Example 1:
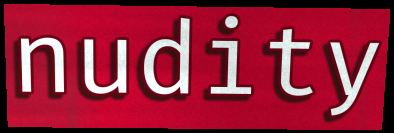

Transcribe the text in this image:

nudity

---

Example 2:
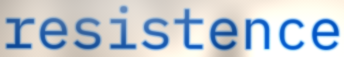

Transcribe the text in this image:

resistence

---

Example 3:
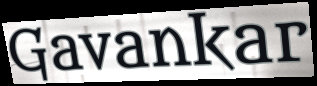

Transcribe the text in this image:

Gavankar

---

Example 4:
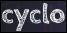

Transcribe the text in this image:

cyclo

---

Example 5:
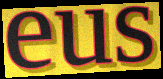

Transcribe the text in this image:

eus